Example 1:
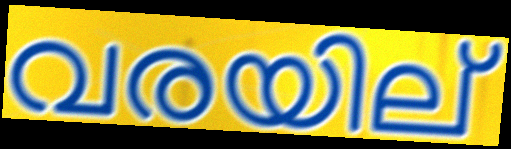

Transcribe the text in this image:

വരയില്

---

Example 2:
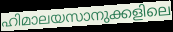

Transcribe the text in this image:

ഹിമാലയസാനുക്കളിലെ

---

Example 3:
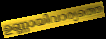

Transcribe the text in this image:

ഉണ്ണായിവാര്യത്തെ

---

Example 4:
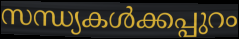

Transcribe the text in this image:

സന്ധ്യകൾക്കപ്പുറം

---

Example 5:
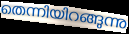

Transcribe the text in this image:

തെന്നിയിറങ്ങുന്നു